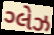
ગ્લેઝ